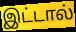
இட்டால்